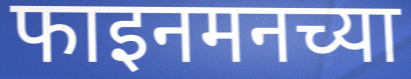
फाइनमनच्या